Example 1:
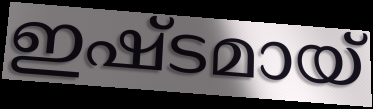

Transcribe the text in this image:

ഇഷ്ടമായ്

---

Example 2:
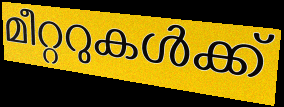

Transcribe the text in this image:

മീറ്ററുകൾക്ക്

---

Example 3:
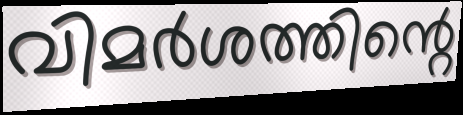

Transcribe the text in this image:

വിമർശത്തിന്റെ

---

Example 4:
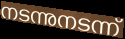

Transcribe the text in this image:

നടന്നുനടന്ന്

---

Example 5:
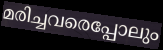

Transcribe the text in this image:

മരിച്ചവരെപ്പോലും